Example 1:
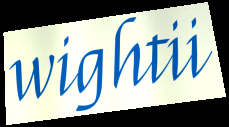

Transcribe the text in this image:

wightii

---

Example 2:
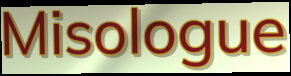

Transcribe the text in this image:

Misologue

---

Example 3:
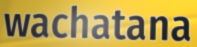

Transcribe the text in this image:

wachatana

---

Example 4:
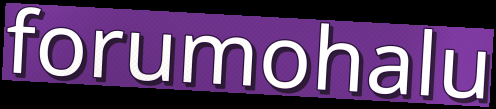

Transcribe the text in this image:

forumohalu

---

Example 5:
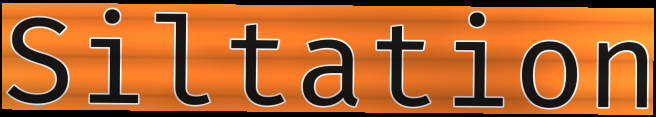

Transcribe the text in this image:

Siltation